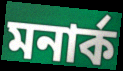
মনার্ক